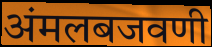
अंमलबजवणी